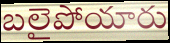
బలైపోయారు